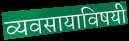
व्यवसायाविषयी